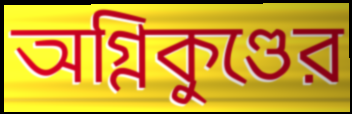
অগ্নিকুণ্ডের